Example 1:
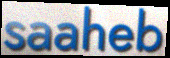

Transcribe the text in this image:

saaheb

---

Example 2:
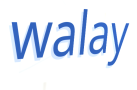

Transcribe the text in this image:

walay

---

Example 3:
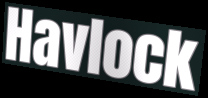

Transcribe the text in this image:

Havlock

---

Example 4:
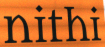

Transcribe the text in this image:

nithi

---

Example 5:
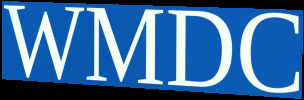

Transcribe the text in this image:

WMDC